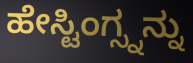
ಹೇಸ್ಟಿಂಗ್ಸ್ನನ್ನು